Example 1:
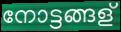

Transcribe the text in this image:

നോട്ടങ്ങള്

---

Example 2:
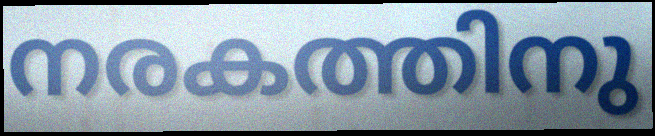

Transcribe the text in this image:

നരകത്തിനു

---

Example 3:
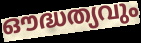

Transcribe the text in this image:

ഔദ്ധത്യവും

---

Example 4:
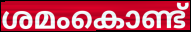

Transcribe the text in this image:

ശമംകൊണ്ട്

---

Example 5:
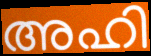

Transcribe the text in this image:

അഹി